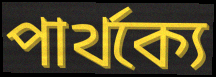
পার্থক্যে